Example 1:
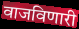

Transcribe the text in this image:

वाजविणारी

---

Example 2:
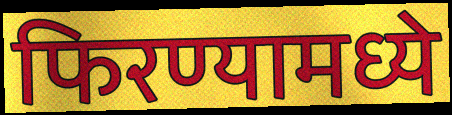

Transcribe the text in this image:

फिरण्यामध्ये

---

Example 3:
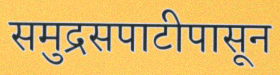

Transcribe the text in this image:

समुद्रसपाटीपासून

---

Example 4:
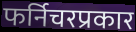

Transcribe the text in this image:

फर्निचरप्रकार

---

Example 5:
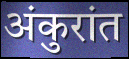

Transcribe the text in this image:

अंकुरांत